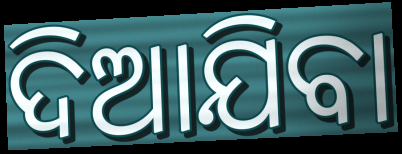
ଦିଆଯିବା